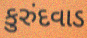
કુરુંદવાડ